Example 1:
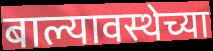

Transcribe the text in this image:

बाल्यावस्थेच्या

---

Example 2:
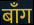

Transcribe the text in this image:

बाँग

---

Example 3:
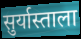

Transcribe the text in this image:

सुर्यास्ताला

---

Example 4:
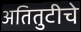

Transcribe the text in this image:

अतितुटीचे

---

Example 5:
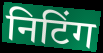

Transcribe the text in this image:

निटिंग